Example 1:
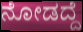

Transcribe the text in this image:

ನೋಡದ್ದೆ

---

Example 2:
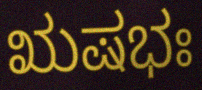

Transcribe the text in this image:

ಋಷಭಃ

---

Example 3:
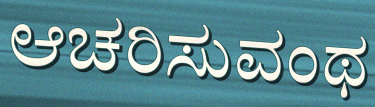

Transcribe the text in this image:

ಆಚರಿಸುವಂಥ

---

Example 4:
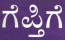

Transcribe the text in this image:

ಗೆಪ್ತಿಗೆ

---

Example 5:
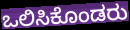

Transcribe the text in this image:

ಒಲಿಸಿಕೊಂಡರು